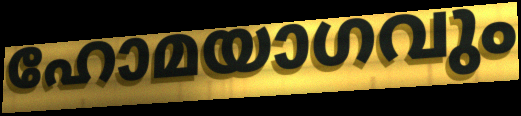
ഹോമയാഗവും